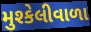
મુશ્કેલીવાળા